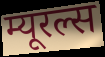
म्यूरल्स